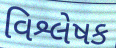
વિશ્લેષક